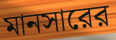
মানসারের